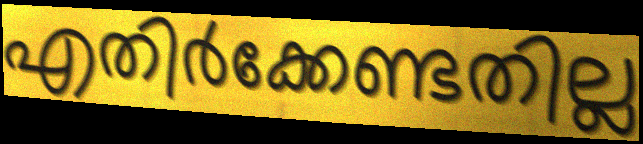
എതിർക്കേണ്ടതില്ല